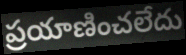
ప్రయాణించలేదు